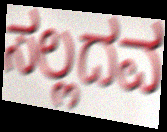
ಸಲ್ಲದವ